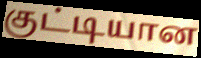
குட்டியான